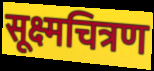
सूक्ष्मचित्रण